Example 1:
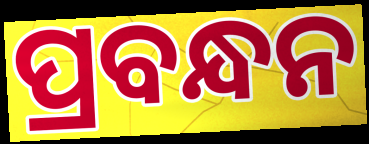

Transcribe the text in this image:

ପ୍ରବନ୍ଧନ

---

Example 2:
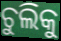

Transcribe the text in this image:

ଚୁଲିକୁ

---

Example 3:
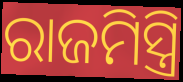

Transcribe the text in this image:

ରାଜମିସ୍ତ୍ରି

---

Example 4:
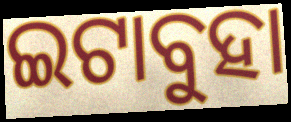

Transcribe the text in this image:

ଇଟାବୁହା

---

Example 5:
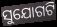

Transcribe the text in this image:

ସୁଯୋଗଟି